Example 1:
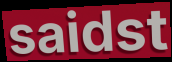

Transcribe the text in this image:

saidst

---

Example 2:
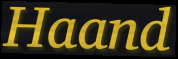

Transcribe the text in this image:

Haand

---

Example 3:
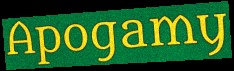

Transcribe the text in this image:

Apogamy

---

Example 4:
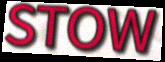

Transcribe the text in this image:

STOW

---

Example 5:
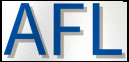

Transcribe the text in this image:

AFL